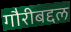
गौरीबद्दल